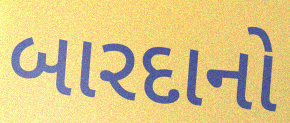
બારદાનો